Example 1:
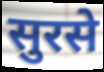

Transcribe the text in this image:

सुरसे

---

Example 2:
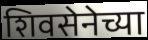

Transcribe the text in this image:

शिवसेनेच्या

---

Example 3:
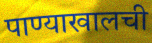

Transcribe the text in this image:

पाण्याखालची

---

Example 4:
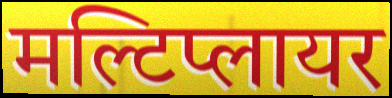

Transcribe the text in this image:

मल्टिप्लायर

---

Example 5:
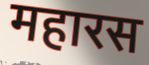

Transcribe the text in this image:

महारस